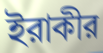
ইরাকীর